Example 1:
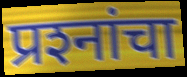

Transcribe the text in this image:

प्रश्‍नांचा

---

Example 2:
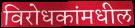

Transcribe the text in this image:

विरोधकांमधील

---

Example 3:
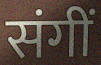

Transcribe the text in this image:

संगीं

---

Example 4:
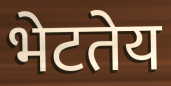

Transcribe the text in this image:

भेटतेय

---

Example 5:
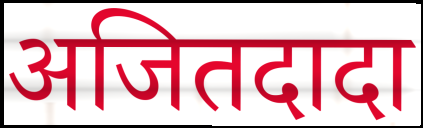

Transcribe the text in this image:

अजितदादा